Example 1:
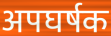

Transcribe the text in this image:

अपघर्षक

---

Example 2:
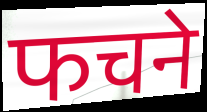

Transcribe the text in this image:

फचने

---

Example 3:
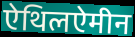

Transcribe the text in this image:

ऐथिलऐमीन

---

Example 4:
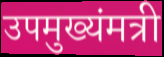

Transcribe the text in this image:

उपमुख्यंमत्री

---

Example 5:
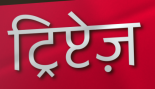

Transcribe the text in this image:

ट्रिप्टेज़